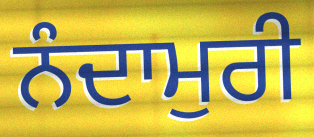
ਨੰਦਾਮੁਰੀ